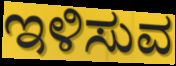
ಇಳಿಸುವ